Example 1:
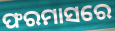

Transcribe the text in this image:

ଫରମାସରେ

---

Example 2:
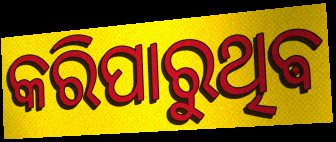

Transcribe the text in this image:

କରିପାରୁଥିଵ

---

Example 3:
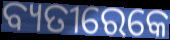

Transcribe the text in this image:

ବ୍ୟତୀରେକେ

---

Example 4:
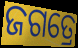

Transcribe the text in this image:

ଜଗତ୍ରେ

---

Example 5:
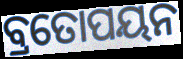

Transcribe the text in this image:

ବ୍ରତୋପୟନ